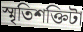
স্মৃতিশক্তিটা